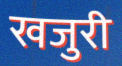
खजुरी